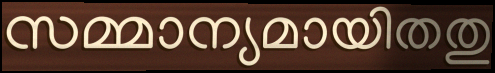
സമ്മാന്യമായിതതു